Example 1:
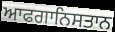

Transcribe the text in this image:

ਆਫਗਾਨਿਸਤਾਨ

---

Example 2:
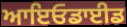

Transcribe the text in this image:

ਆਇਓਡਾਈਡ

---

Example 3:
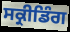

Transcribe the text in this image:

ਸਕ੍ਰੀਡਿੰਗ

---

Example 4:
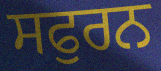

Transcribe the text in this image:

ਸਫੁਰਨ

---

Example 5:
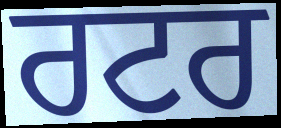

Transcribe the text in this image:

ਰਟਰ